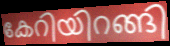
കേറിയിറങ്ങി